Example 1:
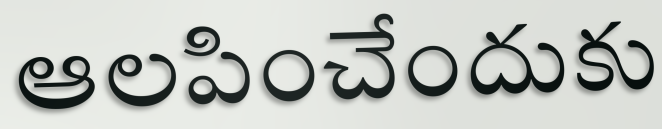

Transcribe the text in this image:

ఆలపించేందుకు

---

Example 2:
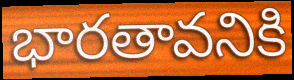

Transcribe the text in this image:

భారతావనికి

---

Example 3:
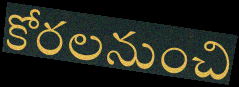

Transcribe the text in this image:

కోరలనుంచి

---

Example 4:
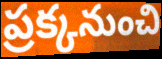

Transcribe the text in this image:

ప్రక్కనుంచి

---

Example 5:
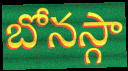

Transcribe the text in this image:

బోనస్గా